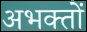
अभक्तों